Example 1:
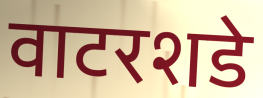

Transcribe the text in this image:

वाटरशडे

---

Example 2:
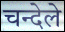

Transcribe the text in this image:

चन्देले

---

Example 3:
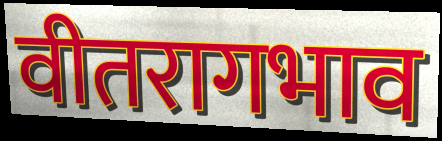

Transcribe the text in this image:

वीतरागभाव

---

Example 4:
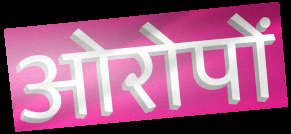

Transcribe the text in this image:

ओरोपों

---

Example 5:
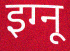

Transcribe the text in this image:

इग्‍नू